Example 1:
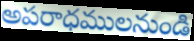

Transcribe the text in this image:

అపరాధములనుండి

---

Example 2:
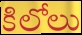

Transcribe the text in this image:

కిలోలు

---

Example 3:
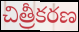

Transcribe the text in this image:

చిత్రీకరణ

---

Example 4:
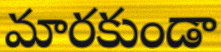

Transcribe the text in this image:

మారకుండా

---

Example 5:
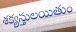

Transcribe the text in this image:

శక్యస్తులయితుం